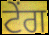
ਟੇਂਗ